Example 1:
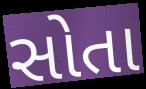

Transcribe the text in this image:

સોતા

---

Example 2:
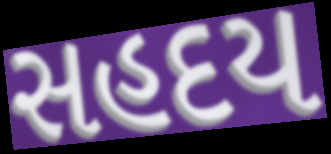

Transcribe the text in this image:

સહદય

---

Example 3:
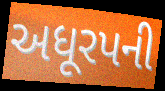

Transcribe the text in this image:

અધૂરપની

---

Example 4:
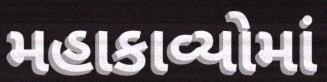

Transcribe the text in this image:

મહાકાવ્યોમાં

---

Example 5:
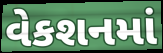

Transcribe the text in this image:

વેકશનમાં